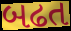
બઢત